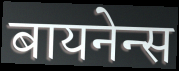
बायनेन्स